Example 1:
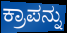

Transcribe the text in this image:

ಕ್ರಾಪನ್ನು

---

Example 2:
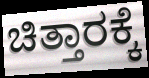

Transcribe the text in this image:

ಚಿತ್ತಾರಕ್ಕೆ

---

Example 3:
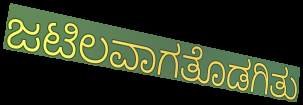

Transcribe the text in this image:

ಜಟಿಲವಾಗತೊಡಗಿತು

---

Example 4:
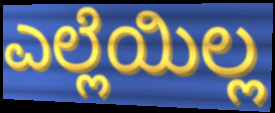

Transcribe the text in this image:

ಎಲ್ಲೆಯಿಲ್ಲ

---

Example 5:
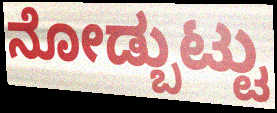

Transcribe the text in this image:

ನೋಡ್ಬುಟ್ಟು